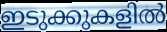
ഇടുക്കുകളിൽ